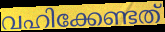
വഹിക്കേണ്ടത്